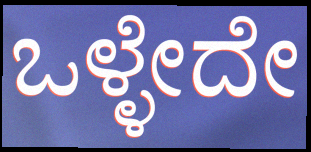
ಒಳ್ಳೇದೇ